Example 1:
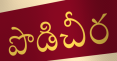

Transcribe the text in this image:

పొడిచీర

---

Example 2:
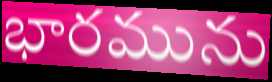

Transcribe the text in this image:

భారమును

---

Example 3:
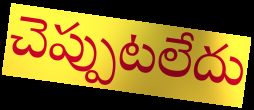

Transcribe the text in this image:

చెప్పుటలేదు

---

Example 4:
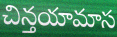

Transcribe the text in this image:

చిన్తయామాస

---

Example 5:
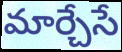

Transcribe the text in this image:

మార్చేసే